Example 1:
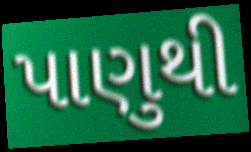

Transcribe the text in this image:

પાણુથી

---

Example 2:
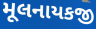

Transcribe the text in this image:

મૂલનાયકજી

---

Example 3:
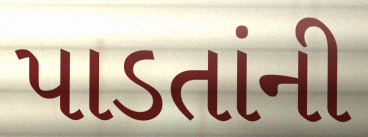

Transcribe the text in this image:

પાડતાંની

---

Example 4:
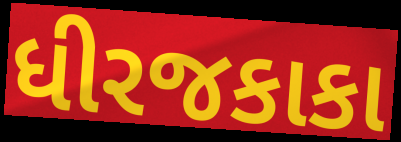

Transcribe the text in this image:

ધીરજકાકા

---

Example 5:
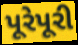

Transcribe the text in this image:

પૂરેપૂરી